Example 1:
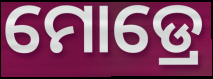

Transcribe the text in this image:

ମୋଡ୍ରେ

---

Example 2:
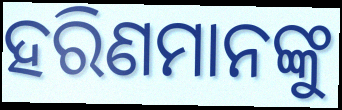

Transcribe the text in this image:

ହରିଣମାନଙ୍କୁ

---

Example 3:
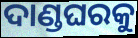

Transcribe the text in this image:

ଦାଣ୍ଡଘରକୁ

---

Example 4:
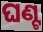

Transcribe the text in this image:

ଘଣ୍ଟ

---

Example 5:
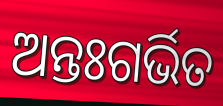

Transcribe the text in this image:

ଅନ୍ତଃଗର୍ଭିତ